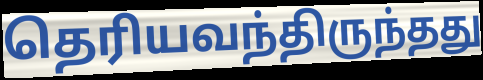
தெரியவந்திருந்தது